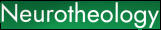
Neurotheology